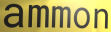
ammon